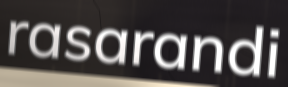
rasarandi